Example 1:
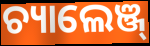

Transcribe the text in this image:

ଚ୍ୟାଲେଞ୍ଜ୍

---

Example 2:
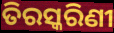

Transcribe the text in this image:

ତିରସ୍କରିଣୀ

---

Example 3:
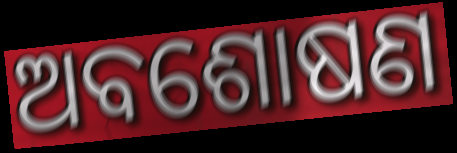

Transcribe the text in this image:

ଅବଶୋଷଣ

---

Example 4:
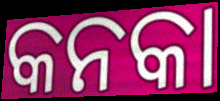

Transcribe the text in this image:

କନକା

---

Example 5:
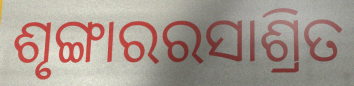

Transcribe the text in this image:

ଶୃଙ୍ଗାରରସାଶ୍ରିତ